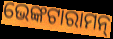
ଭେଙ୍କଟାରାମନ୍